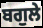
ਬਗੁਲੇ